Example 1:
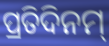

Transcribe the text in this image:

ପ୍ରତିଦିନମ୍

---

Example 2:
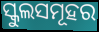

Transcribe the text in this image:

ସ୍କୁଲସମୂହର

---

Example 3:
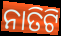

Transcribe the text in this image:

ନାତିଟି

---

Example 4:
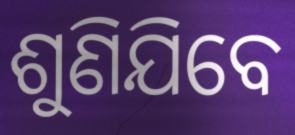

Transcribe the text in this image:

ଶୁଣିଯିବେ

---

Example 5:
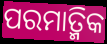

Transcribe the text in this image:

ପରମାତ୍ମିକ